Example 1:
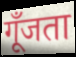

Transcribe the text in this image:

गूँजता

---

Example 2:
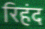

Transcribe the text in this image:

रिहंद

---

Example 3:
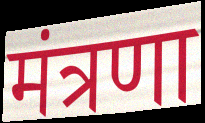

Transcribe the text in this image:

मंत्रणा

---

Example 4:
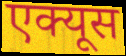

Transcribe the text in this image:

एक्यूस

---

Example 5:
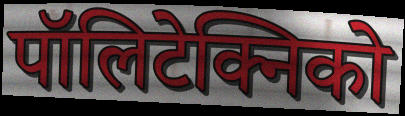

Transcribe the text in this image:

पॉलिटेक्निको